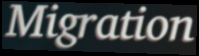
Migration